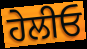
ਹੇਲੀਓ